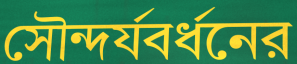
সৌন্দর্যবর্ধনের